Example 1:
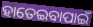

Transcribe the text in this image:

ହାତେଇବାପାଇଁ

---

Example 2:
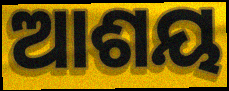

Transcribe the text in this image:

ଆଶୟ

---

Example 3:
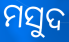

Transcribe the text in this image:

ମସୁଦ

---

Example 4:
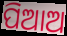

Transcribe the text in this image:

ପିଆଅ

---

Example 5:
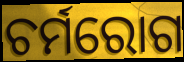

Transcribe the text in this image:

ଚର୍ମରୋଗ